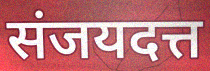
संजयदत्त